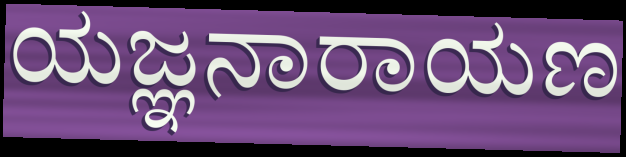
ಯಜ್ಞನಾರಾಯಣ